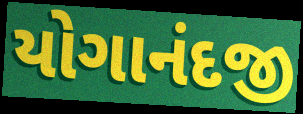
યોગાનંદજી